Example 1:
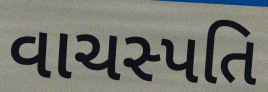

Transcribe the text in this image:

વાચસ્પતિ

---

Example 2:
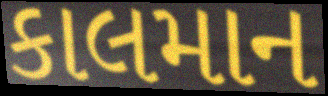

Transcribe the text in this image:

કાલમાન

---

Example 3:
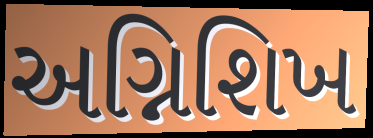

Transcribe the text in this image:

અગ્નિશિખ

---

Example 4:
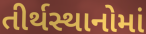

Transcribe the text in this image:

તીર્થસ્થાનોમાં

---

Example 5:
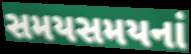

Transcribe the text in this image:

સમયસમયનાં